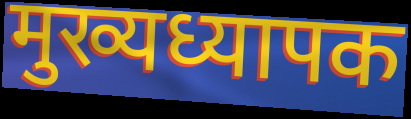
मुख्यध्यापक